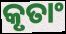
କୃତାଂ